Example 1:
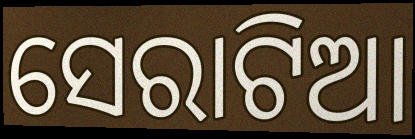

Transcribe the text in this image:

ସେରାଟିଆ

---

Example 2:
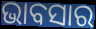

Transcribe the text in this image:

ଭାବସାର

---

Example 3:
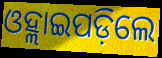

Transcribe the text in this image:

ଓହ୍ଲାଇପଡ଼ିଲେ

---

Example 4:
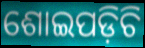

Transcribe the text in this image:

ଶୋଇପଡ଼ିଚି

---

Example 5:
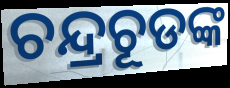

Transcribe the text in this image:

ଚନ୍ଦ୍ରଚୂଡଙ୍କ